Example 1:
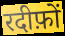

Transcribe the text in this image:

रदीफ़ों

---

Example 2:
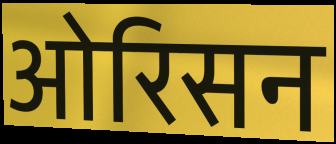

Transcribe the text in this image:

ओरिसन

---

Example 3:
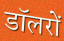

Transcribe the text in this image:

डॉलरों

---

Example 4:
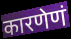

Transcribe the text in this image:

कारणेणं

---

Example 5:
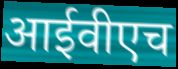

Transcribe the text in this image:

आईवीएच